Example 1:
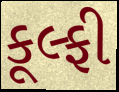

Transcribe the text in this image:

કૂલ્ફી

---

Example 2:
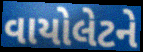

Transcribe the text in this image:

વાયોલેટને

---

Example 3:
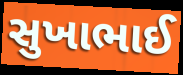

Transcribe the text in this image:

સુખાભાઈ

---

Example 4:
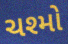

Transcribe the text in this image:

ચશ્મો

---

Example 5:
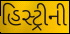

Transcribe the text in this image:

હિસ્ટ્રીની